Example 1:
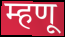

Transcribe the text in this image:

म्हणू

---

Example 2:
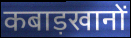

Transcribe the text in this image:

कबाड़खानों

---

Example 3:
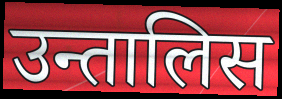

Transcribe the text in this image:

उन्तालिस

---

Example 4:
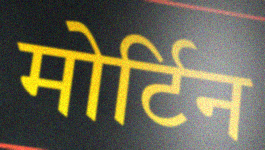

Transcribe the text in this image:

मोर्टिन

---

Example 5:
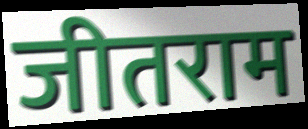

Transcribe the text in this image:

जीतराम